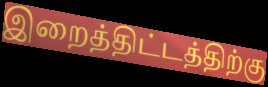
இறைத்திட்டத்திற்கு